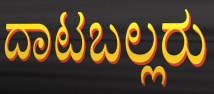
ದಾಟಬಲ್ಲರು